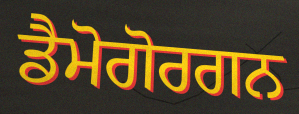
ਡੈਮੋਗੋਰਗਨ